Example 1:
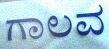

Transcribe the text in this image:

ಗಾಲವ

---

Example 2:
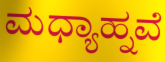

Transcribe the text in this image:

ಮಧ್ಯಾಹ್ನವೆ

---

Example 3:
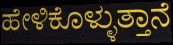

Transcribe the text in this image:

ಹೇಳಿಕೊಳ್ಳುತ್ತಾನೆ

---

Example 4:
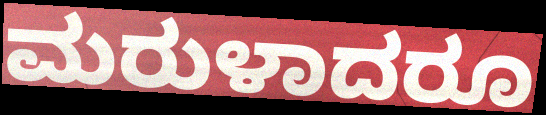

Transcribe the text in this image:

ಮರುಳಾದರೂ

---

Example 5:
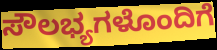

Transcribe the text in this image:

ಸೌಲಭ್ಯಗಳೊಂದಿಗೆ